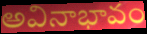
అవినాభావం